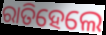
ରାତିହେଲେ